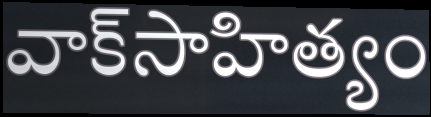
వాక్‌సాహిత్యం